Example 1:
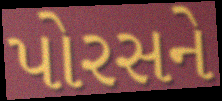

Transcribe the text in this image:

પોરસને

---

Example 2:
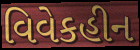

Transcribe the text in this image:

વિવેકહીન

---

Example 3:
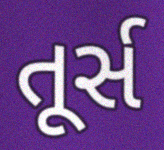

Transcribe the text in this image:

તૂર્સ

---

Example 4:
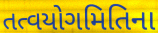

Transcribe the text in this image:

તત્વયોગમિતિના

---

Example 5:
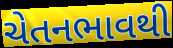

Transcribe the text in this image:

ચેતનભાવથી